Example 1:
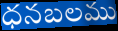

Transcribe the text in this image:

ధనబలము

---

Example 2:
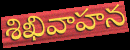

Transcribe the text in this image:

శిఖివాహన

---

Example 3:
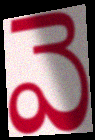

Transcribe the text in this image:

వె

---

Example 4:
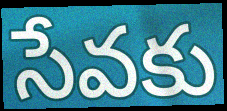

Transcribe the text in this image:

సేవకు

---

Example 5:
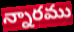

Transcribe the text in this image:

న్నారము